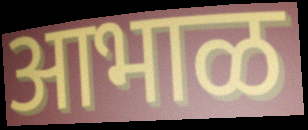
आभाळ